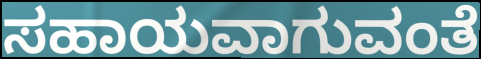
ಸಹಾಯವಾಗುವಂತೆ